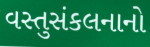
વસ્તુસંકલનાનો